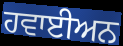
ਹਵਾਈਅਨ